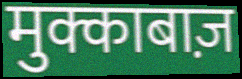
मुक्काबाज़